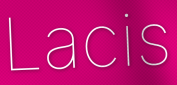
Lacis